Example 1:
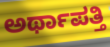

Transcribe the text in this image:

ಅರ್ಥಾಪತ್ತಿ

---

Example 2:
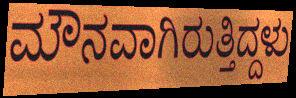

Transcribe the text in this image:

ಮೌನವಾಗಿರುತ್ತಿದ್ದಳು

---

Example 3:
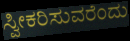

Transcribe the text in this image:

ಸ್ವೀಕರಿಸುವರೆಂದು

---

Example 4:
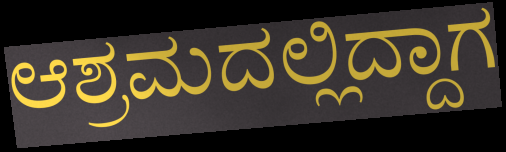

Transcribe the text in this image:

ಆಶ್ರಮದಲ್ಲಿದ್ದಾಗ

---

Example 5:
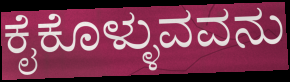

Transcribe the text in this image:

ಕೈಕೊಳ್ಳುವವನು